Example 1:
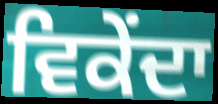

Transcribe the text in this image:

ਵਿਕੇਂਦਾ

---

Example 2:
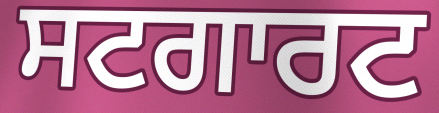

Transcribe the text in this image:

ਸਟਗਾਰਟ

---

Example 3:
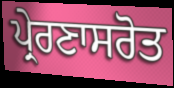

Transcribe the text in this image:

ਪ੍ਰੇਰਣਾਸਰੋਤ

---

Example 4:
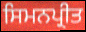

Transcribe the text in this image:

ਸਿਮਨਪ੍ਰੀਤ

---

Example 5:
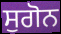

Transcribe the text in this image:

ਸੁਗੋਨ